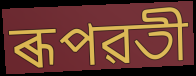
ৰূপৱতী